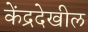
केंद्रदेखील